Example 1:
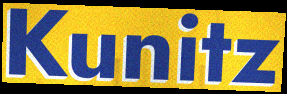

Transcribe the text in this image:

Kunitz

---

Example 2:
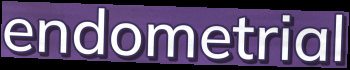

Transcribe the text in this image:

endometrial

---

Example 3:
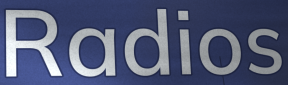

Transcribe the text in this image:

Radios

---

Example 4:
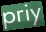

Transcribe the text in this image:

priy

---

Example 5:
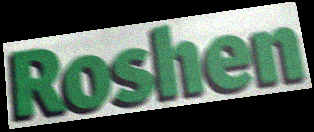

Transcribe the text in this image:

Roshen